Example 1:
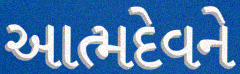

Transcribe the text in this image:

આત્મદેવને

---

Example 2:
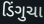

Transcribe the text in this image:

ડિંગુચા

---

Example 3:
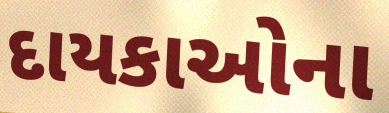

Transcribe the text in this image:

દાયકાઓના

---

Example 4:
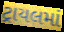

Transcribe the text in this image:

ટ્રાયલમાં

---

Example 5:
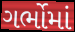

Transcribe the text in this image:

ગર્ભોમાં